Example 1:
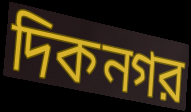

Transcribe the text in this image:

দিকনগর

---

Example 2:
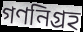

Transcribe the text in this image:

গণনিগ্রহ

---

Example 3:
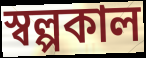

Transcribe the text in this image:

স্বল্পকাল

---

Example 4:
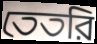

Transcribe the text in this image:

তেতরি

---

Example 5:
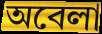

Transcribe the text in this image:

অবেলা